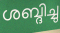
ശബ്ദിച്ചു